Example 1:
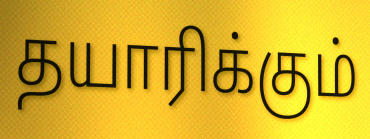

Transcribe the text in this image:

தயாரிக்கும்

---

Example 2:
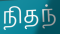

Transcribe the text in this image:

நிதந்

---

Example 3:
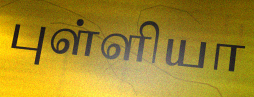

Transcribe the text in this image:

புள்ளியா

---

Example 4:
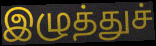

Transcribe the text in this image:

இழுத்துச்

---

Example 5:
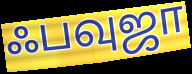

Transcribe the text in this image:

ஃபவுஜா